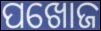
ପଖୋଜ